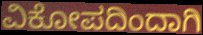
ವಿಕೋಪದಿಂದಾಗಿ